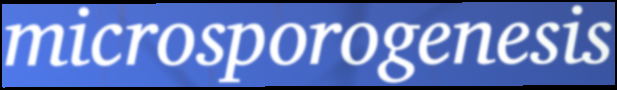
microsporogenesis